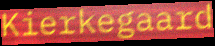
Kierkegaard